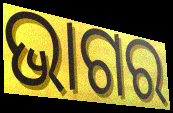
ଭାଗର